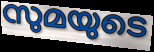
സുമയുടെ